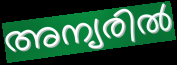
അന്യരിൽ